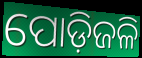
ପୋଡ଼ିଜଳି